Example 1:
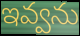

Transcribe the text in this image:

ఇవ్వను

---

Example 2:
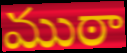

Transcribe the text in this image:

ముఠా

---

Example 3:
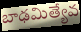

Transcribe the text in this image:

బాఢమిత్యేవ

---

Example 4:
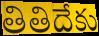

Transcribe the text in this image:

తితిదేకు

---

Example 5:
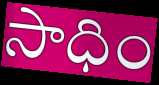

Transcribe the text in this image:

సాధిం